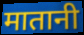
मातानी